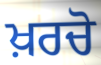
ਖ਼ਰਚੋ